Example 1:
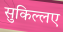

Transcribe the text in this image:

सुकिल्लए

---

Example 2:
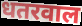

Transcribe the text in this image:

धतरवाल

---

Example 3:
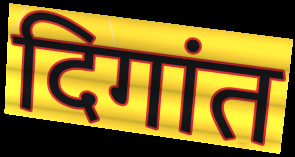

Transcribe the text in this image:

दिगांत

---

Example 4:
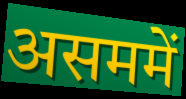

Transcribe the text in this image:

असममें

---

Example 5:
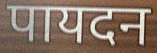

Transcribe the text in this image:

पायदन